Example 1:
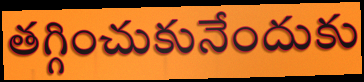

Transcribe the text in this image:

తగ్గించుకునేందుకు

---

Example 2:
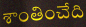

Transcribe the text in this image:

శాంతించేది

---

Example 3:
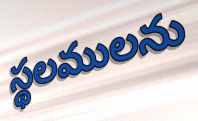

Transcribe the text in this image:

స్థలములను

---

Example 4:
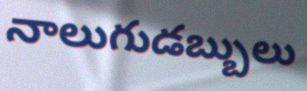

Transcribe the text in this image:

నాలుగుడబ్బులు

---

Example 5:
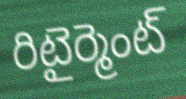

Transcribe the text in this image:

రిటైర్మెంట్